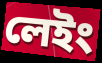
লেইং